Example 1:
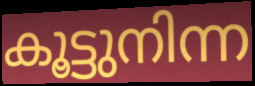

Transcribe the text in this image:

കൂട്ടുനിന്ന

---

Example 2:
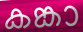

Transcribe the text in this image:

കങ്കാ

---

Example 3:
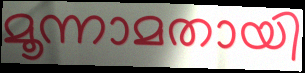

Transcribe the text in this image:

മൂന്നാമതായി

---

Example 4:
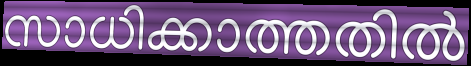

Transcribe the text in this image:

സാധിക്കാത്തതിൽ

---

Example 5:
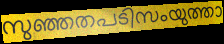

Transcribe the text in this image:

സുഞ്ഞതപടിസംയുത്താ